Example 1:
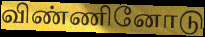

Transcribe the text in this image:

விண்ணினோடு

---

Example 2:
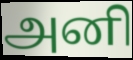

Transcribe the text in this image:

அனி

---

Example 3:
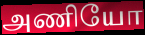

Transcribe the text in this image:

அணியோ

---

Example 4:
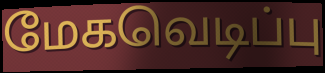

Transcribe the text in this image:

மேகவெடிப்பு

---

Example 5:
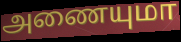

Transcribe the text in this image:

அணையுமா